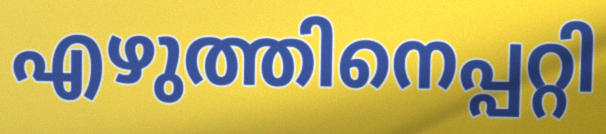
എഴുത്തിനെപ്പറ്റി